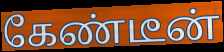
கேண்டீன்